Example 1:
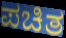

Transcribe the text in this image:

ಪಚಿತ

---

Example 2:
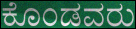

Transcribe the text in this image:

ಕೊಂಡವರು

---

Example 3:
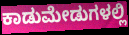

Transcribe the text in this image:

ಕಾಡುಮೇಡುಗಳಲ್ಲಿ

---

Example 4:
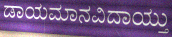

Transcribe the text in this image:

ಡಾಯಮಾನವಿದಾಯ್ತು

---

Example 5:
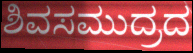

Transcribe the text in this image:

ಶಿವಸಮುದ್ರದ